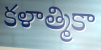
కళాత్మికా